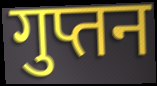
गुप्तन